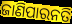
ଜାଣିପାରନତି